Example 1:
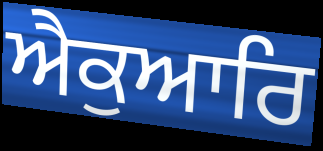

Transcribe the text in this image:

ਐਕੁਆਰਿ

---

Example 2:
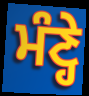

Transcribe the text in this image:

ਮੰਣ੍ਹੇ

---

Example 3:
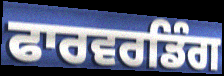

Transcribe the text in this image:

ਫਾਰਵਰਡਿੰਗ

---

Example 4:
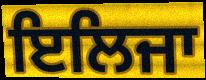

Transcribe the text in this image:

ਇਲਿਜਾ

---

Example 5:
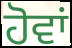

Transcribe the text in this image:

ਹੋਵਾਂ